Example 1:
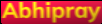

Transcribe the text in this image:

Abhipray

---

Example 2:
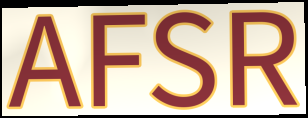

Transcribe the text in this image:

AFSR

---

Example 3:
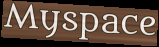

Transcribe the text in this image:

Myspace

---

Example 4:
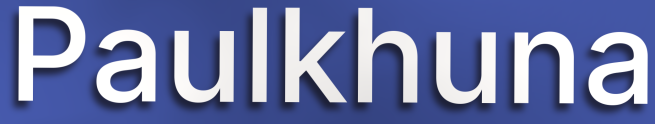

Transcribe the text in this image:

Paulkhuna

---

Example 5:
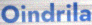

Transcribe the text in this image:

Oindrila